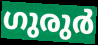
ഗുരുർ